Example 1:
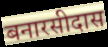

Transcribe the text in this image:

बनारसीदास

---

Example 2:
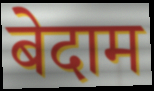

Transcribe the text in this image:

बेदाम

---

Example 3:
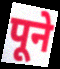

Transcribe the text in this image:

पूने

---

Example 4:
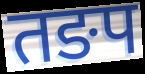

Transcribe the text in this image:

तङप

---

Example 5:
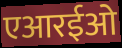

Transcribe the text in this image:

एआरईओ